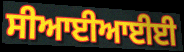
ਸੀਆਈਆਈਈ